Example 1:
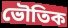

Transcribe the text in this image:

ভৌতিক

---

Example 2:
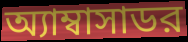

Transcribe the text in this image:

অ্যাম্বাসাডর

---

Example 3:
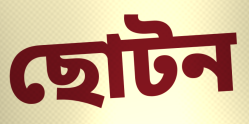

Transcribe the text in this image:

ছোটন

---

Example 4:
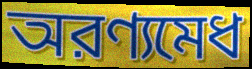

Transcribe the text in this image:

অরণ্যমেধ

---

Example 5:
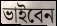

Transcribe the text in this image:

ভাইবেন